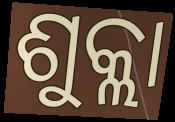
ଶୁକ୍ଲା